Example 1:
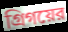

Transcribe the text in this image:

গ্রিগয়ের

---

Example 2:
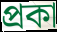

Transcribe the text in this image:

প্রকা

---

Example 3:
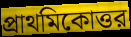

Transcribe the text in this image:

প্রাথমিকোত্তর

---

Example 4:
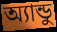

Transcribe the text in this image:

অ্যান্ডু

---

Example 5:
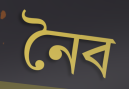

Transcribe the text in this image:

নৈব